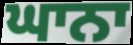
ਘਾਨਾ